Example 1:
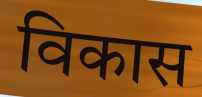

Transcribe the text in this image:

विकास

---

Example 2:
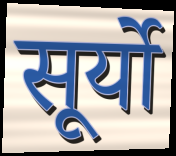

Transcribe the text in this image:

सूर्यो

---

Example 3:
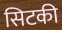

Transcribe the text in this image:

सिटकी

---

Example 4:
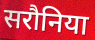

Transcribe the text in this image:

सरौनिया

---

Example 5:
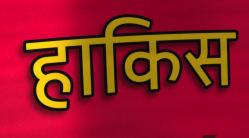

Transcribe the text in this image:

हाकिस